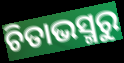
ଚିତାଭସ୍ମରୁ